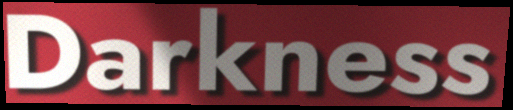
Darkness